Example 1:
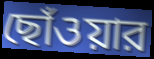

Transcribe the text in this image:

ছোঁওয়ার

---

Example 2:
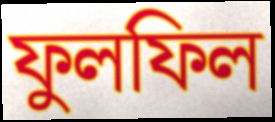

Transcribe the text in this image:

ফুলফিল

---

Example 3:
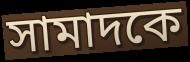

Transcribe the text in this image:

সামাদকে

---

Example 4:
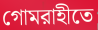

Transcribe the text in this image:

গোমরাহীতে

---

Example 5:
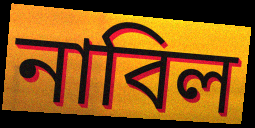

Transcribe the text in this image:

নাবিল